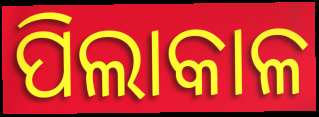
ପିଲାକାଳ